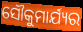
ସୌକୁମାର୍ଯ୍ୟର